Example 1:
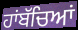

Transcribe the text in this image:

ਹਾਂਬੱਚਿਆਂ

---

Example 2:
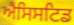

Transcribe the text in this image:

ਐਸਿਸਟਿਡ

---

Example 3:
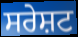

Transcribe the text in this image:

ਸਰੇਸ਼ਟ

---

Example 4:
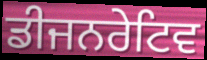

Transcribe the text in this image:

ਡੀਜਨਰੇਟਿਵ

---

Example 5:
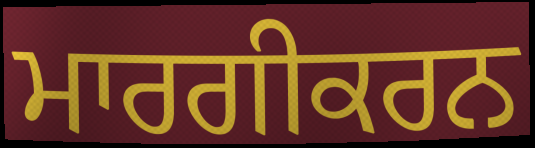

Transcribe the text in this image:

ਮਾਰਗੀਕਰਨ